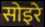
सोइरे